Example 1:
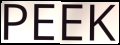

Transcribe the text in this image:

PEEK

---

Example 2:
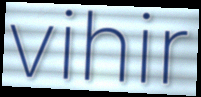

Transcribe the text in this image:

vihir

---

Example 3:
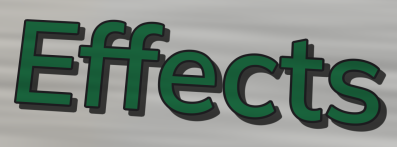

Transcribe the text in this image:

Effects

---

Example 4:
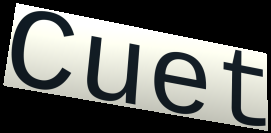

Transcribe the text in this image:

Cuet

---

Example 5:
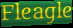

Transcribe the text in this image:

Fleagle